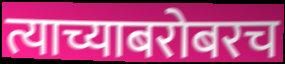
त्याच्याबरोबरच